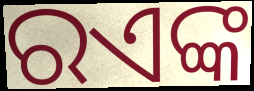
ରଏଙ୍କ